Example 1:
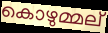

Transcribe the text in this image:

കൊഴുമ്മല്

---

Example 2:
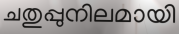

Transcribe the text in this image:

ചതുപ്പുനിലമായി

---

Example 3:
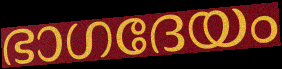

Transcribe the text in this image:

ഭാഗദേയം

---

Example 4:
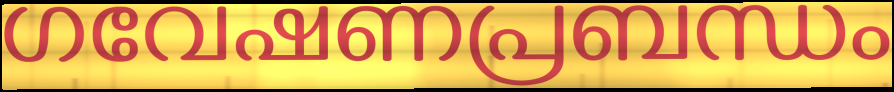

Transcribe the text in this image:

ഗവേഷണപ്രബന്ധം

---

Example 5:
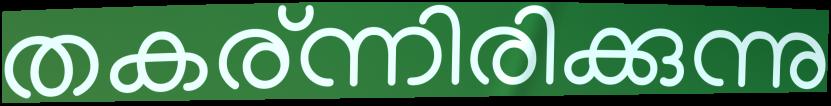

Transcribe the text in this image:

തകര്ന്നിരിക്കുന്നു